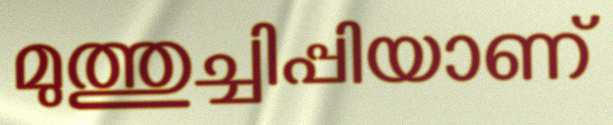
മുത്തുച്ചിപ്പിയാണ്